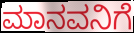
ಮಾನವನಿಗೆ